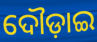
ଦୌଡ଼ାଇ